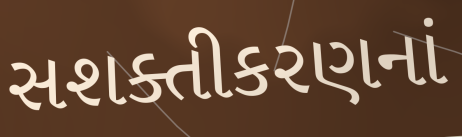
સશક્તીકરણનાં